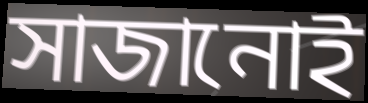
সাজানোই